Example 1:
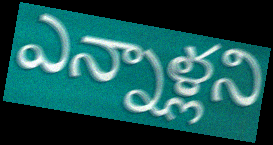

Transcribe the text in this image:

ఎన్నాళ్లని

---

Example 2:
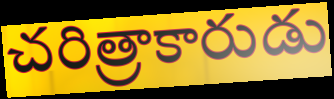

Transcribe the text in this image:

చరిత్రాకారుడు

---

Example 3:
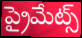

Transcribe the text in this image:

ప్రైమేట్స్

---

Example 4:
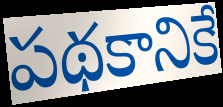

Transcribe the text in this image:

పథకానికే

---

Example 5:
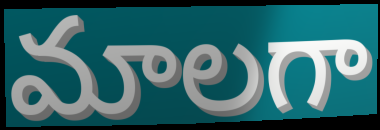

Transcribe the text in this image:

మాలగా